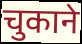
चुकाने